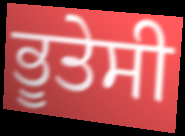
ਭੂਤੇਸੀ